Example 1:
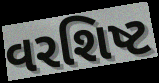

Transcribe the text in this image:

વરશિષ્ટ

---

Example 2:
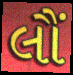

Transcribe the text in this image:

લૌં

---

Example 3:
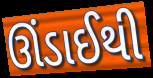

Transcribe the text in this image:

ઊંડાઈથી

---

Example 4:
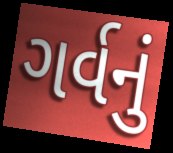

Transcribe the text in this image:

ગર્વનું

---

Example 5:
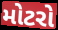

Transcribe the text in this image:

મોટરો